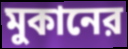
মুকানের